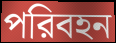
পরিবহন